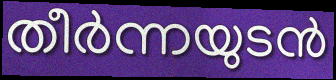
തീർന്നയുടൻ